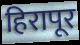
हिरापूर